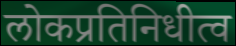
लोकप्रतिनिधीत्व